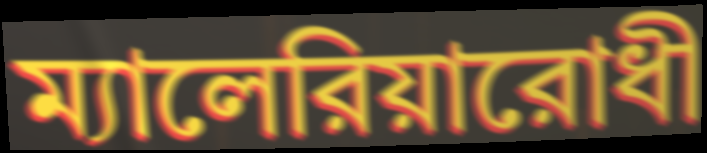
ম্যালেরিয়ারোধী